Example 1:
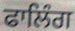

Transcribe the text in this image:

ਫਾਲਿੰਗ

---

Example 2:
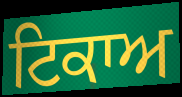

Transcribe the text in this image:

ਟਿਕਾਅ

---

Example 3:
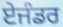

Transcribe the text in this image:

ਏਜੰਡਰ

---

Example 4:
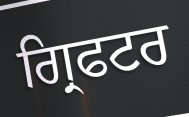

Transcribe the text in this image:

ਗ੍ਰਿਫਟਰ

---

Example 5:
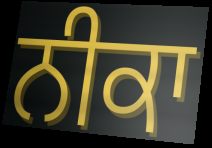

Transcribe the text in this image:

ਨੀਕਾ